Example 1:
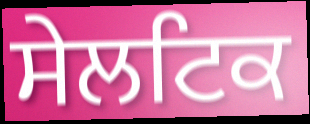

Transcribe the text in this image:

ਸੇਲਟਿਕ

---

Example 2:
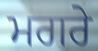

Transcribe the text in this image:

ਮਗਰੇ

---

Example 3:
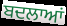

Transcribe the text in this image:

ਬਦਲਾਆਂ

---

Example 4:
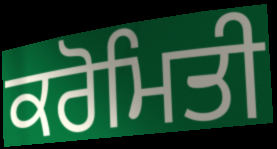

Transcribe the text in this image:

ਕਰੋਮਿਤੀ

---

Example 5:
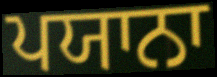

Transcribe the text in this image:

ਪਯਾਨਾ